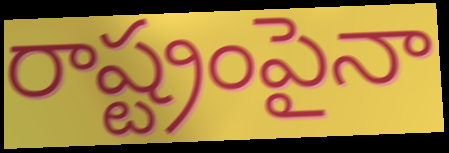
రాష్ట్రంపైనా